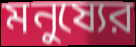
মনুষ্যের